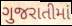
ગુજરાતીમાં